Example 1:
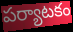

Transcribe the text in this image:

పర్యాటకం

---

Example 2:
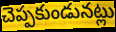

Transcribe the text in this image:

చెప్పకుండునట్లు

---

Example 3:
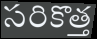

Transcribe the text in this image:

సరికొత్త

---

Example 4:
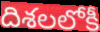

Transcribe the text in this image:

దిశలలోకీ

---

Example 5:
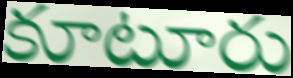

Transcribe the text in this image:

కూటూరు